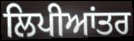
ਲਿਪੀਆਂਤਰ